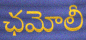
ఛమోలీ